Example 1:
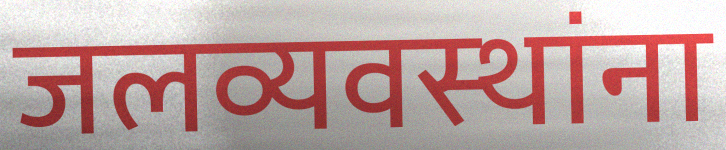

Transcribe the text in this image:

जलव्यवस्थांना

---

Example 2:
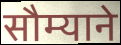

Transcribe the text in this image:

सौम्याने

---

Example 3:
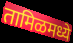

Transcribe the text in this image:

तामिळमध्ये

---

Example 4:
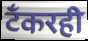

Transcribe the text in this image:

टँकरही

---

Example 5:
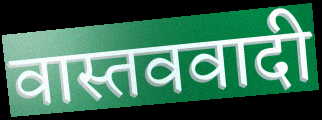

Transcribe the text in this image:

वास्तववादी